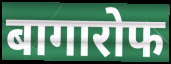
बागारोफ